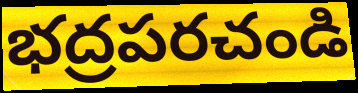
భద్రపరచండి